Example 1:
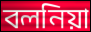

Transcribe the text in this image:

বলনিয়া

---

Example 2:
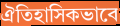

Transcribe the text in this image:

ঐতিহাসিকভাবে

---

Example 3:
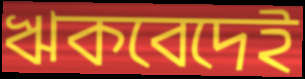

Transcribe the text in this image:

ঋকবেদেই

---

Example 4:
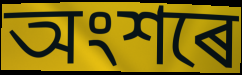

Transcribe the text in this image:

অংশৰে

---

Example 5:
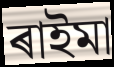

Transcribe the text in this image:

ৰাইমা